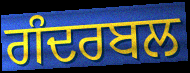
ਗੰਦਰਬਲ